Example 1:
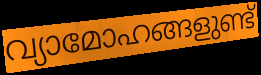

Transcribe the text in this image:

വ്യാമോഹങ്ങളുണ്ട്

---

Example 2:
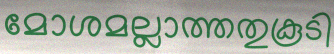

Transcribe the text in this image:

മോശമല്ലാത്തതുകൂടി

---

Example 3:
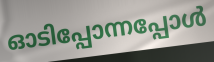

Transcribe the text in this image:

ഓടിപ്പോന്നപ്പോൾ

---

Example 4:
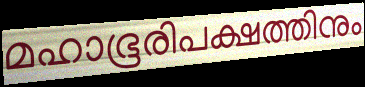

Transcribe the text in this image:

മഹാഭൂരിപക്ഷത്തിനും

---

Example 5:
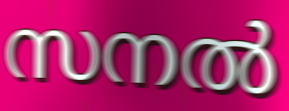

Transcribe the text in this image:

സനൽ